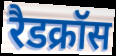
रैडक्रॉस